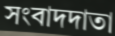
সংবাদদাতা